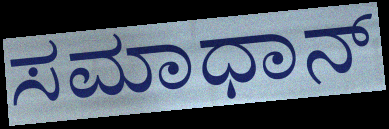
ಸಮಾಧಾನ್